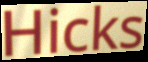
Hicks